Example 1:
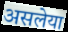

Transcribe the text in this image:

असलेया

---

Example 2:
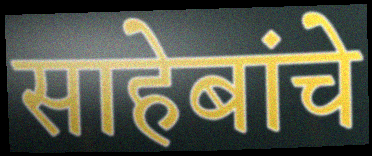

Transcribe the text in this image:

साहेबांचे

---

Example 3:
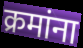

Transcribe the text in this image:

क्रमांना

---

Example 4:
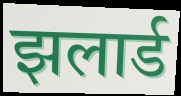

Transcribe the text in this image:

झलार्ड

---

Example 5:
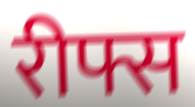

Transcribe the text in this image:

रीफ्स